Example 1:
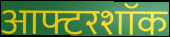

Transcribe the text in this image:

आफ्टरशॉक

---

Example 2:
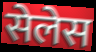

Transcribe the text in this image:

सेलेस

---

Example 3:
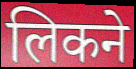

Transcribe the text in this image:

लिकने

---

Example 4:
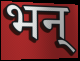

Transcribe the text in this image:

भन्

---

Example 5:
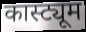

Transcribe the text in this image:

कास्ट्यूम